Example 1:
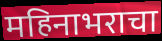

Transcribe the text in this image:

महिनाभराचा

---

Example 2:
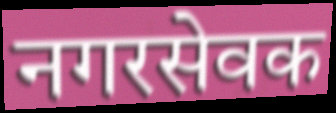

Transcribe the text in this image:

नगरसेवक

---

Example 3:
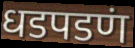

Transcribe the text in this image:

धडपडणं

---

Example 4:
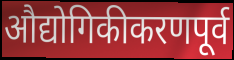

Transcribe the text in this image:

औद्योगिकीकरणपूर्व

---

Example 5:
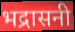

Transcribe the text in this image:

भद्रासनी